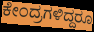
ಕೇಂದ್ರಗಳಿದ್ದರೂ